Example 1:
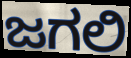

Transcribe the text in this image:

ಜಗಲಿ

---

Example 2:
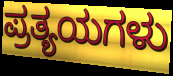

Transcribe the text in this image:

ಪ್ರತ್ಯಯಗಳು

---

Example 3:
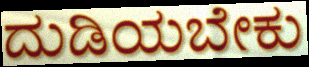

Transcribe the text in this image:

ದುಡಿಯಬೇಕು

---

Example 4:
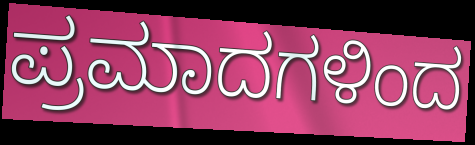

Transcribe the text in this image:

ಪ್ರಮಾದಗಳಿಂದ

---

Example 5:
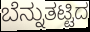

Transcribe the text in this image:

ಬೆನ್ನುತಟ್ಟಿದ